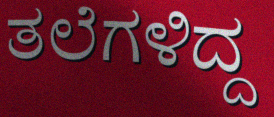
ತಲೆಗಳಿದ್ದ